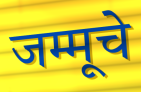
जम्मूचे